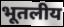
भूतलीय